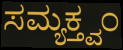
ಸಮ್ಯಕ್ತ್ವಂ